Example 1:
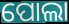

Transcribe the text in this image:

ପୋଲା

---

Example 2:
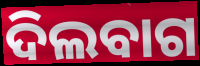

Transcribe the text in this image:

ଦିଲବାଗ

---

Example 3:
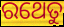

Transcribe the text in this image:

ରଥେତୁ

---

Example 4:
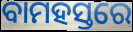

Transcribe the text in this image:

ବାମହସ୍ତରେ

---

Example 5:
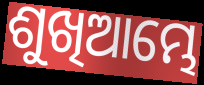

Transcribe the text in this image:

ଶୁଖିଆମ୍ଭେ